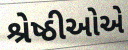
શ્રેષ્ઠીઓએ